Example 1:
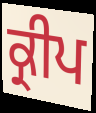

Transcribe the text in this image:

ਕ੍ਰੀਪ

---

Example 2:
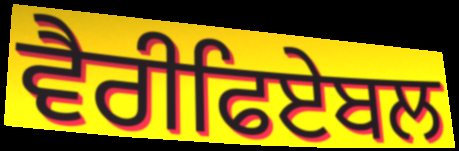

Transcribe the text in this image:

ਵੈਰੀਫਿਏਬਲ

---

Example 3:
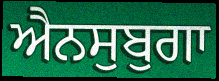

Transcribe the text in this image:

ਐਨਸੁਬੁਗਾ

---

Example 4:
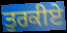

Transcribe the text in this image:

ਤੁਰਕੀਏ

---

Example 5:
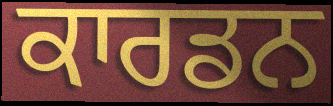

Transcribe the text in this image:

ਕਾਰਡਨ